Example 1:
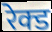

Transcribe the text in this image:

रेक्ड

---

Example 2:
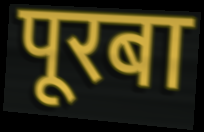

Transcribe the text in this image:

पूरबा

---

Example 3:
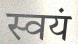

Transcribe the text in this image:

स्‍वयं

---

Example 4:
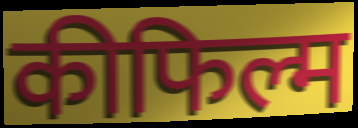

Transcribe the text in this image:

कीफिल्म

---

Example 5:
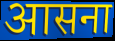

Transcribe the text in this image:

आसना